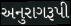
અનુરાગરૂપી